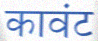
कावंट